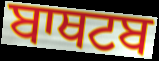
ਬਾਥਟਬ